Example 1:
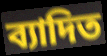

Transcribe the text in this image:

ব্যাদিত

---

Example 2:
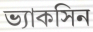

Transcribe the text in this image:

ভ্যাকসিন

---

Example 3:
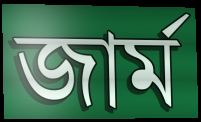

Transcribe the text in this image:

জার্ম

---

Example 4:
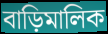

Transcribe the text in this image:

বাড়িমালিক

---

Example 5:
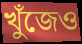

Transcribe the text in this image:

খুঁজেও